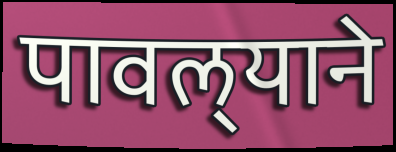
पावल्याने